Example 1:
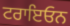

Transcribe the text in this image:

ਟਰਾਇਓਨ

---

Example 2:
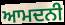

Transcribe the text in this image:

ਆਮਦਨੀ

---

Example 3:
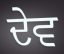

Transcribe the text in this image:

ਦੇਵ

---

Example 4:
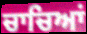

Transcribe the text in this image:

ਚਾਚਿਆਂ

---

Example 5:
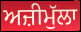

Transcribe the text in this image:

ਅਜ਼ੀਮੁੱਲਾ